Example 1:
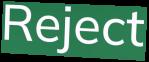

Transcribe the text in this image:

Reject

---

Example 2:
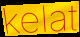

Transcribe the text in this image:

kelat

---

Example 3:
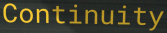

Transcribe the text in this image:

Continuity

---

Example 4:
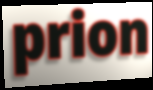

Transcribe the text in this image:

prion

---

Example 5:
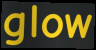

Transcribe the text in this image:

glow